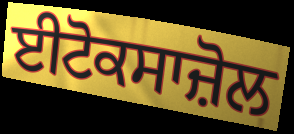
ਈਟੋਕਸਾਜ਼ੋਲ